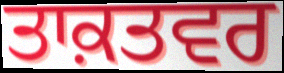
ਤਾਕ਼ਤਵਰ